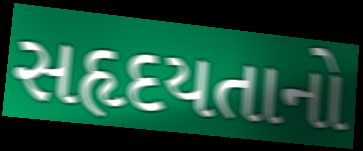
સહૃદયતાનો